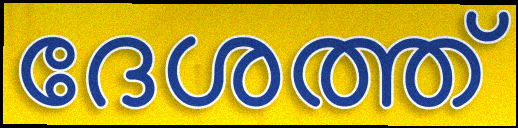
ദേശത്ത്